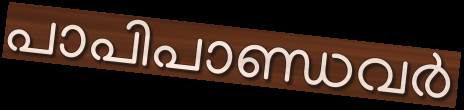
പാപിപാണ്ഡവർ